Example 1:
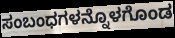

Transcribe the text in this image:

ಸಂಬಂಧಗಳನ್ನೊಳಗೊಂಡ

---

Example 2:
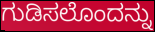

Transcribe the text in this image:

ಗುಡಿಸಲೊಂದನ್ನು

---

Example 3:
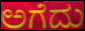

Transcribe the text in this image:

ಅಗೆದು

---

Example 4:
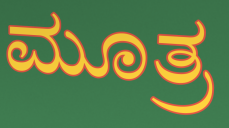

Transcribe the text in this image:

ಮೂತ್ರ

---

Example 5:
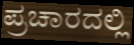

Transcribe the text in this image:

ಪ್ರಚಾರದಲ್ಲಿ